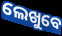
ଲେଖୁବେ